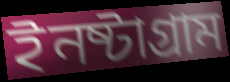
ইনষ্টাগ্ৰাম